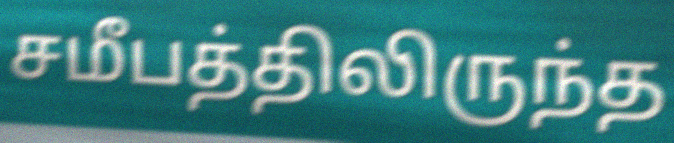
சமீபத்திலிருந்த